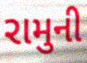
રામુની